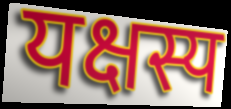
यक्षस्य